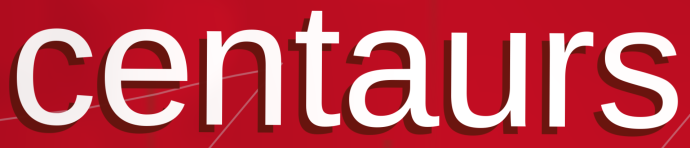
centaurs